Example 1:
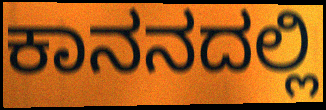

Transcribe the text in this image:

ಕಾನನದಲ್ಲಿ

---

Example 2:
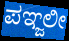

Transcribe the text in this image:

ಪಞ್ಜಲೀ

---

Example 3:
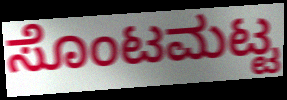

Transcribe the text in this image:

ಸೊಂಟಮಟ್ಟ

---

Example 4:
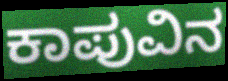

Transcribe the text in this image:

ಕಾಪುವಿನ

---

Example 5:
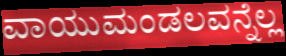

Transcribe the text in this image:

ವಾಯುಮಂಡಲವನ್ನೆಲ್ಲ